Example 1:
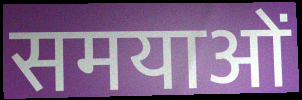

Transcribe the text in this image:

समयाओं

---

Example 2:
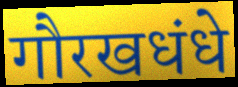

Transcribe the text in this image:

गौरखधंधे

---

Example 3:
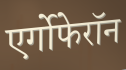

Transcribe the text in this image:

एर्गोफेरॉन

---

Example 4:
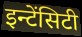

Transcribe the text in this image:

इन्टेंसिटी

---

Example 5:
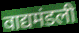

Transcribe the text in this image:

वाद्यमंडली